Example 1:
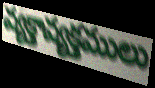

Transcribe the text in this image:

వ్యక్తావ్యక్తములు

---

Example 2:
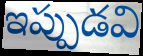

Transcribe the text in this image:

ఇప్పుడవి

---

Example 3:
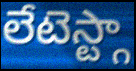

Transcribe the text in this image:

లేటెస్ట్గా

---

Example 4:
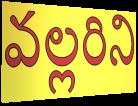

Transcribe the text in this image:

వల్లరిని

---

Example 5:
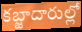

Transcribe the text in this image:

కబ్జాదారుల్లో